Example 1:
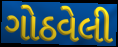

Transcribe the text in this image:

ગોઠવેલી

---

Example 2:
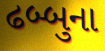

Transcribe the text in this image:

ઢબ્બુના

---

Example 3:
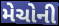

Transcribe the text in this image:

મેચોની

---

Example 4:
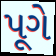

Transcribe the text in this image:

પૂગે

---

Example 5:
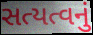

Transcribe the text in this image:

સત્યત્વનું